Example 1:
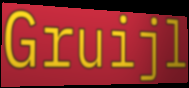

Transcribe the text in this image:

Gruijl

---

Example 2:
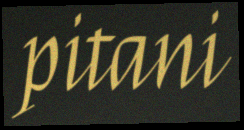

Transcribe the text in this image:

pitani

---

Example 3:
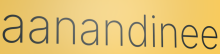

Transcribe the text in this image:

aanandinee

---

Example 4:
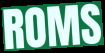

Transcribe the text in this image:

ROMS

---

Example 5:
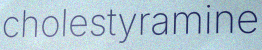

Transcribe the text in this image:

cholestyramine